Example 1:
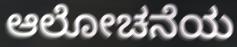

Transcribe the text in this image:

ಆಲೋಚನೆಯ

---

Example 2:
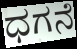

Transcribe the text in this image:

ಧಗನೆ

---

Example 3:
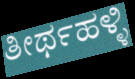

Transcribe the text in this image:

ತೀರ್ಥಹಳ್ಳಿ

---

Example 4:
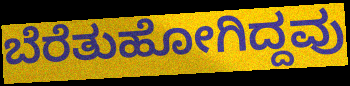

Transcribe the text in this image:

ಬೆರೆತುಹೋಗಿದ್ದವು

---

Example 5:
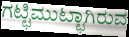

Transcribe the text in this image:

ಗಟ್ಟಿಮುಟ್ಟಾಗಿರುವ